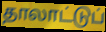
தாலாட்டுப்